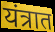
यंत्रात